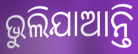
ଭୁଲିଯାଆନ୍ତି